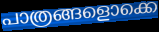
പാത്രങ്ങളൊക്കെ